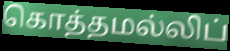
கொத்தமல்லிப்